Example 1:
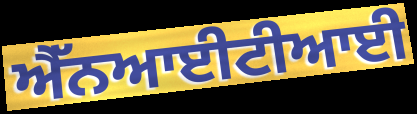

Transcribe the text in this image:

ਐੱਨਆਈਟੀਆਈ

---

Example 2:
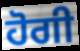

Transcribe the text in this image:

ਹੋਗੀ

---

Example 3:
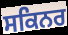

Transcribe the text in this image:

ਸਕਿਨਰ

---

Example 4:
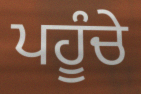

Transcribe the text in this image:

ਪਹੂੰਚੇ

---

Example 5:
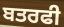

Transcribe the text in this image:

ਬਤਰਫੀ